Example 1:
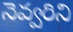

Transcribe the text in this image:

నెవ్వరిని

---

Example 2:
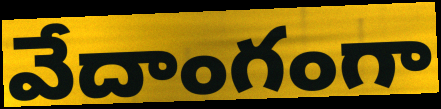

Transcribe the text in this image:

వేదాంగంగా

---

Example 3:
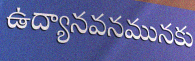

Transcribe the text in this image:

ఉద్యానవనమునకు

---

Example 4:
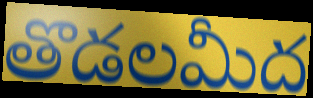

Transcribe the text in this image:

తొడలమీద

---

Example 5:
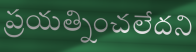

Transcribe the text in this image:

ప్రయత్నించలేదని